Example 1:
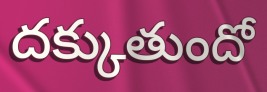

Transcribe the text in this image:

దక్కుతుందో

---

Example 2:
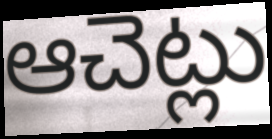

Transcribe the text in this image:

ఆచెట్లు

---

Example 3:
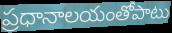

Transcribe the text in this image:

ప్రధానాలయంతోపాటు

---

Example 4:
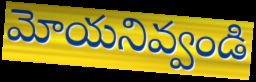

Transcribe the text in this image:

మోయనివ్వండి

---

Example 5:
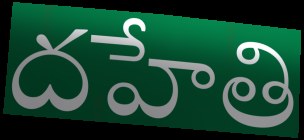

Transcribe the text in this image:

దహేతి